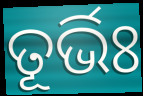
ତୂର୍ଭିଃ